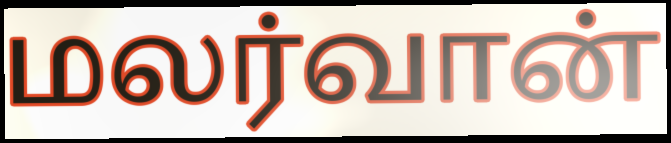
மலர்வான்